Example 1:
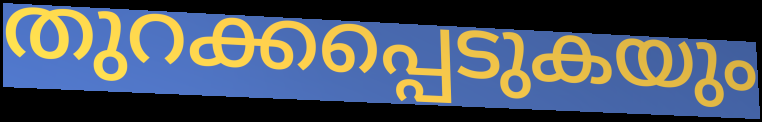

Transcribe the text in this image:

തുറക്കപ്പെടുകയും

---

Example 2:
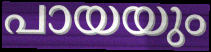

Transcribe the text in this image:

പായയും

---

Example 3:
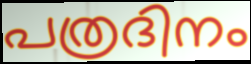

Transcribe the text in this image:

പത്രദിനം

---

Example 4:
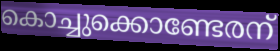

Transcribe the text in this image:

കൊച്ചുക്കൊണ്ടേരന്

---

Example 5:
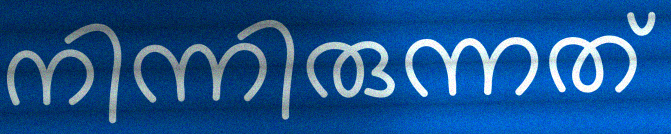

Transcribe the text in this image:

നിന്നിരുന്നത്